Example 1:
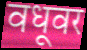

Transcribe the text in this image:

वधूवर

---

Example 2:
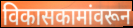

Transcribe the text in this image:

विकासकामांवरून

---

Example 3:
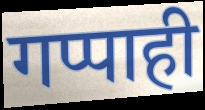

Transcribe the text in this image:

गप्पाही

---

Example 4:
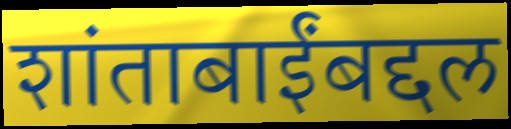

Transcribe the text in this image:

शांताबाईंबद्दल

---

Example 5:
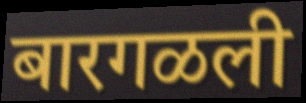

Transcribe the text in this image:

बारगळली